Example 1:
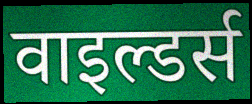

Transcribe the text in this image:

वाइल्डर्स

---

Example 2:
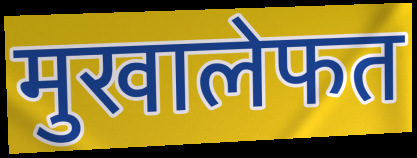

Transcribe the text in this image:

मुखालेफत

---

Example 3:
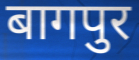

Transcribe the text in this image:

बागपुर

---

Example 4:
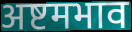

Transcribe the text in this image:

अष्टमभाव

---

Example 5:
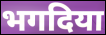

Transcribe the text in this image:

भगदिया